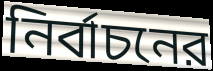
নির্বাচনের